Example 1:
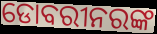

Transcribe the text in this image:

ଡୋବରୀନରଙ୍କ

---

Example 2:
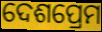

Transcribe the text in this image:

ଦେଶପ୍ରେମ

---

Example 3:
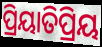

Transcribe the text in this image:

ପ୍ରିୟାତିପ୍ରିୟ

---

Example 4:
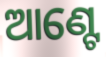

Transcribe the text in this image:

ଆଣ୍ଟେ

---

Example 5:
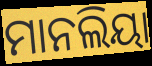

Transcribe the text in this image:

ମାନଲିୟା